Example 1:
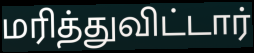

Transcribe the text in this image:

மரித்துவிட்டார்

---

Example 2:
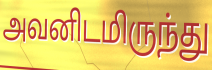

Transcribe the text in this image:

அவனிடமிருந்து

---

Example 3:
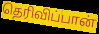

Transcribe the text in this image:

தெரிவிப்பான்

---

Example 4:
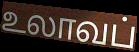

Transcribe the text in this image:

உலாவப்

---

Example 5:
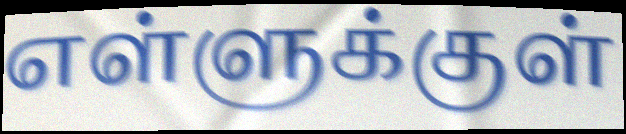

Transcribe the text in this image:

எள்ளுக்குள்